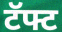
टॅफ्ट